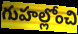
గుహల్లోంచి